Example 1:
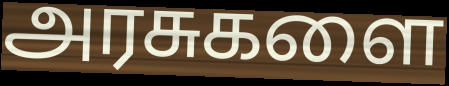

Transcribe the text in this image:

அரசுகளை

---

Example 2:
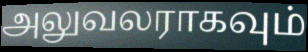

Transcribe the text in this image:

அலுவலராகவும்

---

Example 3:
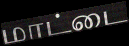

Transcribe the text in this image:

மாட்டை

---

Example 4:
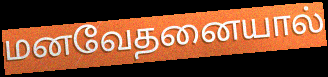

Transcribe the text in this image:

மனவேதனையால்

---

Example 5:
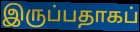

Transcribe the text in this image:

இருப்பதாகப்